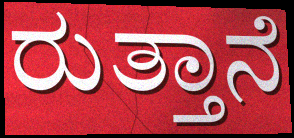
ರುತ್ತಾನೆ